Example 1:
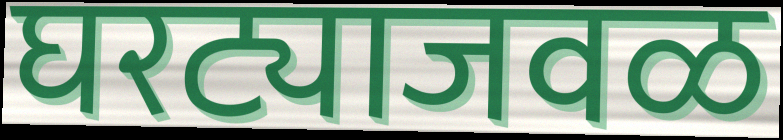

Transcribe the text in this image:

घरट्याजवळ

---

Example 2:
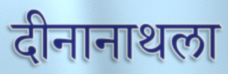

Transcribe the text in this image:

दीनानाथला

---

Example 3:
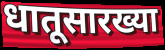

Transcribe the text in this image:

धातूसारख्या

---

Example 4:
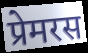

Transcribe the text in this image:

प्रेमरस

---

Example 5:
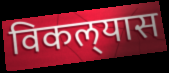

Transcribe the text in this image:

विकल्यास